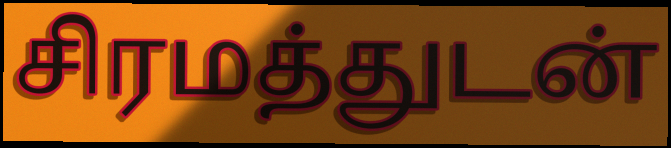
சிரமத்துடன்